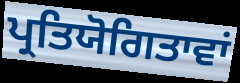
ਪ੍ਰਤਿਯੋਗਿਤਾਵਾਂ